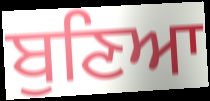
ਬੁਣਿਆ